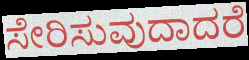
ಸೇರಿಸುವುದಾದರೆ